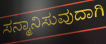
ಸನ್ಮಾನಿಸುವುದಾಗಿ